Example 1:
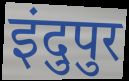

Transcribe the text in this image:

इंदुपुर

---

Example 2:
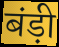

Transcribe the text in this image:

बंड़ी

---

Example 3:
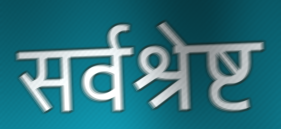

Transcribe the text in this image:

सर्वश्रेष्ट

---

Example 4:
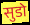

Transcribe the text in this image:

सुडो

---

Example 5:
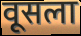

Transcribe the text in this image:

वूसला